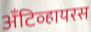
अँटिव्हायरस